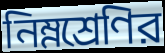
নিম্নশ্রেণির